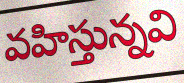
వహిస్తున్నవి